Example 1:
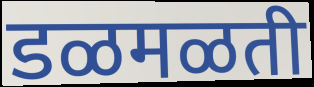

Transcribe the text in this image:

डळमळती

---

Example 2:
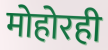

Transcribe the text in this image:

मोहोरही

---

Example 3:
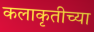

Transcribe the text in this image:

कलाकृतीच्या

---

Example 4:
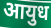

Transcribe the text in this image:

आयुध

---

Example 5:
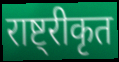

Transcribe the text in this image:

राष्ट्रीकृत